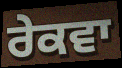
ਰੇਕਵਾ